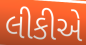
લીકીએ